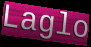
Laglo